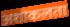
अशोकलता